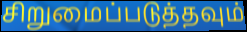
சிறுமைப்படுத்தவும்